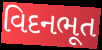
વિદનભૂત